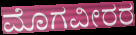
ಮೊಗವೀರರ